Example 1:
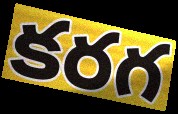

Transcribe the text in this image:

కరగ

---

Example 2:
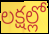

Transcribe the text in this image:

లక్షల్లో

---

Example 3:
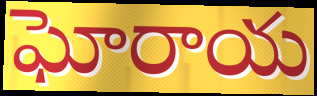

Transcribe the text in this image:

ఘోరాయ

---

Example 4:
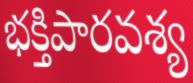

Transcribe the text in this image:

భక్తిపారవశ్య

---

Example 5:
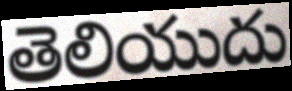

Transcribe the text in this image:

తెలియుదు